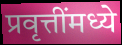
प्रवृत्तींमध्ये